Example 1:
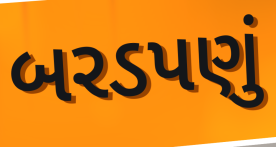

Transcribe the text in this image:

બરડપણું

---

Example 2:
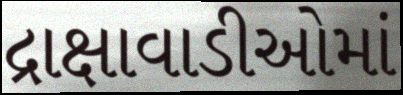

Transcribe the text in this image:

દ્રાક્ષાવાડીઓમાં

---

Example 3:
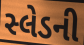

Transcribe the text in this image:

સ્લેડની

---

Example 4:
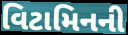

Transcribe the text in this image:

વિટામિનની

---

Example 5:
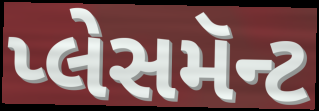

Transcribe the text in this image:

પ્લેસમૅન્ટ